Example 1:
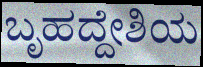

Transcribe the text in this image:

ಬೃಹದ್ದೇಶಿಯ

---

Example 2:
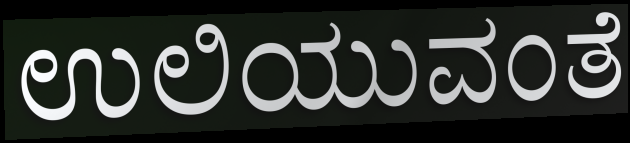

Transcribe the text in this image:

ಉಲಿಯುವಂತೆ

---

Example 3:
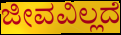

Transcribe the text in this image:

ಜೀವವಿಲ್ಲದೆ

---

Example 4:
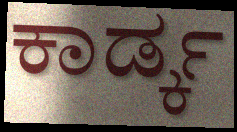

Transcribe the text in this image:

ಕಾರ್ಡ್ಕ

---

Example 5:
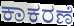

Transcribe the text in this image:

ಕಾಕರಣೆ